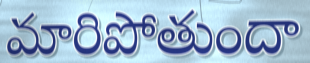
మారిపోతుందా